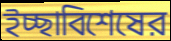
ইচ্ছাবিশেষের